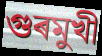
গুৰমুখী